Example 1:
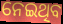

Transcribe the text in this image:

ନେଇଥିବ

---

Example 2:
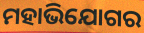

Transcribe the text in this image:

ମହାଭିଯୋଗର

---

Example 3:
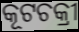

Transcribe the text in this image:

କୂଟଚକ୍ରୀ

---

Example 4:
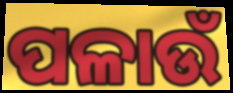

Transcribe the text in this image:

ପଳାଉଁ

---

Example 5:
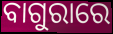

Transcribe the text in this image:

ବାଗୁରାରେ